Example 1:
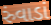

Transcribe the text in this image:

રુંવાડાં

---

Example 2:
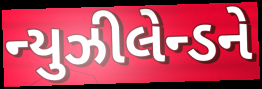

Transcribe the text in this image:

ન્યુઝીલેન્ડને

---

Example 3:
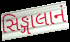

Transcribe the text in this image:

સિઙ્ગાલાનં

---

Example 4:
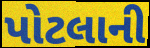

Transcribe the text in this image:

પોટલાની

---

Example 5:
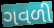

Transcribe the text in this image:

ગવળી